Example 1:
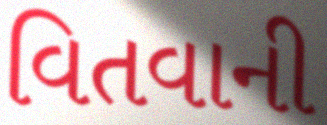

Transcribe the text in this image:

વિતવાની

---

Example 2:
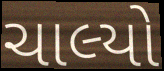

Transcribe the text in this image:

ચાલ્યો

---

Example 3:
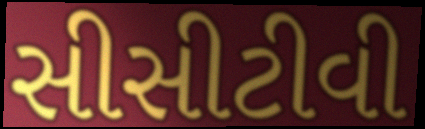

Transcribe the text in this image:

સીસીટીવી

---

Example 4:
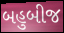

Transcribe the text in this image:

બહુબીજ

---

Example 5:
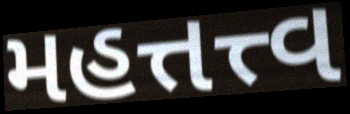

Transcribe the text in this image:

મહત્તત્ત્વ